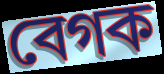
বেগক